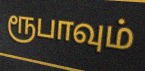
ரூபாவும்